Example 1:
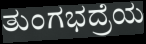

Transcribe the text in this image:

ತುಂಗಭದ್ರೆಯ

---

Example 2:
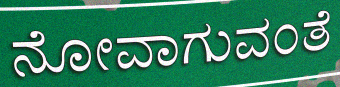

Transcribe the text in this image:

ನೋವಾಗುವಂತೆ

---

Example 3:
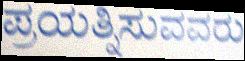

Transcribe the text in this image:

ಪ್ರಯತ್ನಿಸುವವರು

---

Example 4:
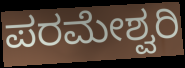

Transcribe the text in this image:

ಪರಮೇಶ್ವರಿ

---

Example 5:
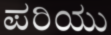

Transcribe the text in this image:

ಪರಿಯು